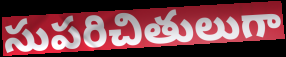
సుపరిచితులుగా